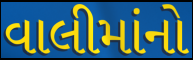
વાલીમાંનો